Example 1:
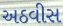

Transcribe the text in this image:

અઠવીસ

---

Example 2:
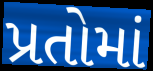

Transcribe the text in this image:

પ્રતોમાં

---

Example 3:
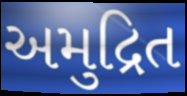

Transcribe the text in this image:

અમુદ્રિત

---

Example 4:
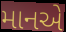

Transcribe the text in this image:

માનએ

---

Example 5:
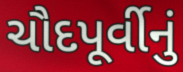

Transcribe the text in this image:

ચૌદપૂર્વીનું